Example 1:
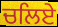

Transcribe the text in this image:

ਚਲਿਏ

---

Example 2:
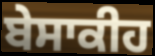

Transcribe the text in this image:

ਬੇਸਾਕੀਹ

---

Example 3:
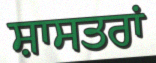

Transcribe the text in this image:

ਸ਼ਾਸਤਰਾਂ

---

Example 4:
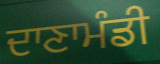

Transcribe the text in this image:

ਦਾਣਾਮੰਡੀ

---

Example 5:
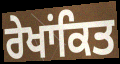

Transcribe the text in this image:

ਰੇਖਾਂਕਿਤ